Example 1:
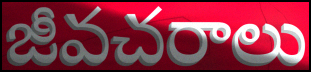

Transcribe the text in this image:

జీవచరాలు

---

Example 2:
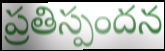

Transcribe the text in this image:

ప్రతిస్పందన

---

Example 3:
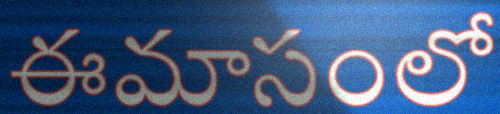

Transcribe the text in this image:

ఈమాసంలో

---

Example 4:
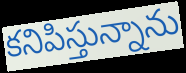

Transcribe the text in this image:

కనిపిస్తున్నాను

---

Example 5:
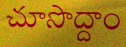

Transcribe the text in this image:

చూసొద్దాం